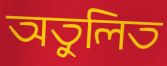
অতুলিত